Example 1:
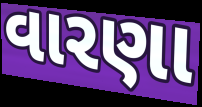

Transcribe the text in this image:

વારણા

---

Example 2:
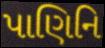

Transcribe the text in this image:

પાણિનિ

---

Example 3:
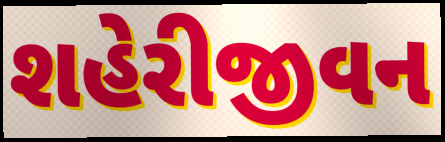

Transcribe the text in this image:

શહેરીજીવન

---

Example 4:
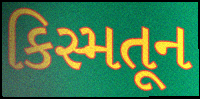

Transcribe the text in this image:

કિસ્મતૂન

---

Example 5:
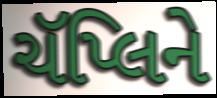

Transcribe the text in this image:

ચૅપ્લિને